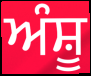
ਅੰਸ਼ੂ